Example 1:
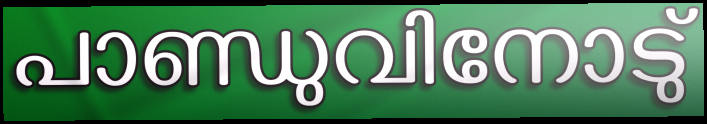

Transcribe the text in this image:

പാണ്ഡുവിനോടു്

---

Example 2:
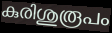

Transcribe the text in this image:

കുരിശുരൂപം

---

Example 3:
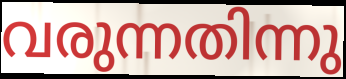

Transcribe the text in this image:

വരുന്നതിന്നു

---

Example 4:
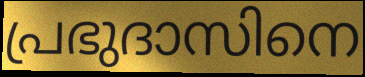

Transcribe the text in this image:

പ്രഭുദാസിനെ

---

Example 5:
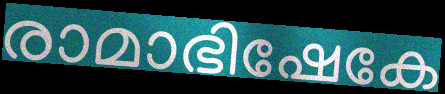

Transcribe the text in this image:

രാമാഭിഷേകേ